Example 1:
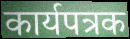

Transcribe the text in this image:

कार्यपत्रक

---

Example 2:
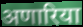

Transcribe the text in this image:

अणारिया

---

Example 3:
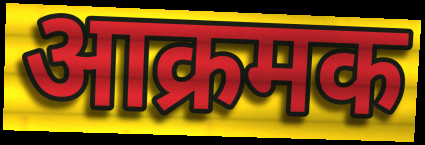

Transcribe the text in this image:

आक्रमक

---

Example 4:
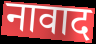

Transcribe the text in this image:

नावाद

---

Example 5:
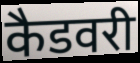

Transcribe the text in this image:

कैडवरी